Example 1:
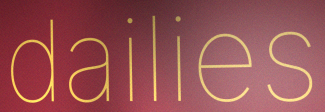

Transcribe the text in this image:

dailies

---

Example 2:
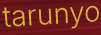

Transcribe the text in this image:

tarunyo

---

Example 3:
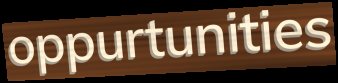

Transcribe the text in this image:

oppurtunities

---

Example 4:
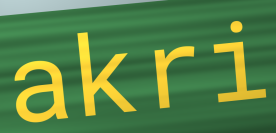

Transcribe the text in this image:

akri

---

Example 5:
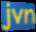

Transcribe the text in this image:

jvn